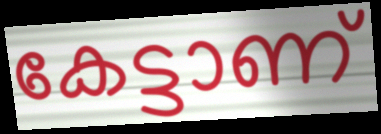
കേട്ടാണ്